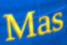
Mas